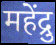
महेंद्रु